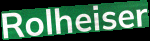
Rolheiser